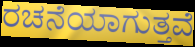
ರಚನೆಯಾಗುತ್ತವೆ